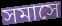
সমাসে